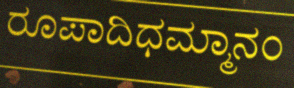
ರೂಪಾದಿಧಮ್ಮಾನಂ